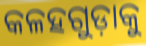
କଳହଗୁଡ଼ାକୁ